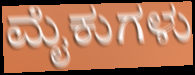
ಮೈಕುಗಳು